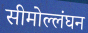
सीमोल्लंघन